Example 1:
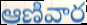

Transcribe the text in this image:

ఆణివార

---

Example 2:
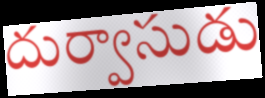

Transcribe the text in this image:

దుర్వాసుడు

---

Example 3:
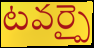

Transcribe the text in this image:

టవర్పై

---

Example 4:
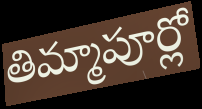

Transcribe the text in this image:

తిమ్మాపూర్లో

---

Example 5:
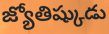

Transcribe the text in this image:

జ్యోతిష్కుడు